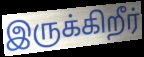
இருக்கிறீர்